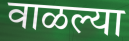
वाळल्या